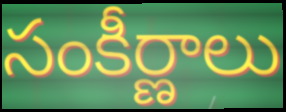
సంకీర్ణాలు